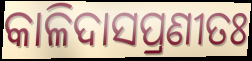
କାଳିଦାସପ୍ରଣୀତଃ